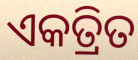
ଏକତ୍ରିତ